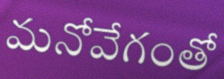
మనోవేగంతో